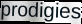
prodigies